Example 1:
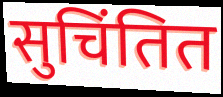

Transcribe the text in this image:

सुचिंतित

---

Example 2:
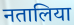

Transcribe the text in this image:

नतालिया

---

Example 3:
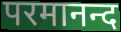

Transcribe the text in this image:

परमानन्द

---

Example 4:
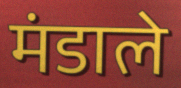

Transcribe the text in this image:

मंडाले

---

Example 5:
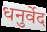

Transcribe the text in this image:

धनुर्वेद